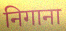
निगाना